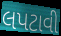
લપટાવી